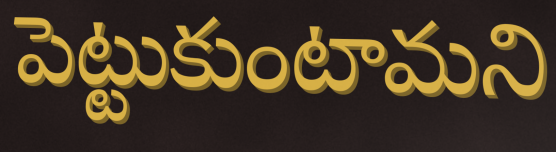
పెట్టుకుంటామని